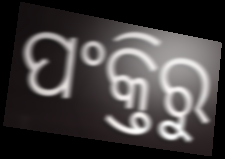
ପଂକ୍ତିରୁ